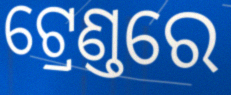
ଟ୍ରେଣ୍ଡରେ